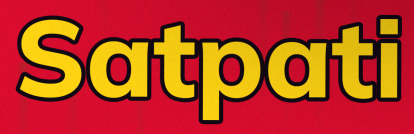
Satpati